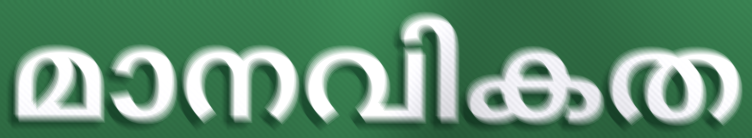
മാനവികത